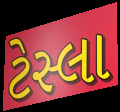
ટેસ્લા